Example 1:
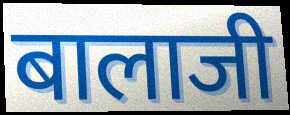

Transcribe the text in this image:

बालाजी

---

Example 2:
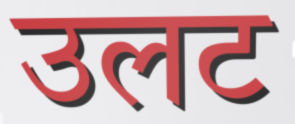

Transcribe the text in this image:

उलट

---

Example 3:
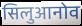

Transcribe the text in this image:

सिलुआनोव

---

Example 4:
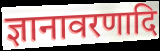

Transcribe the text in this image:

ज्ञानावरणादि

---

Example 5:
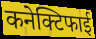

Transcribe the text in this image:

कनेक्टिफाई